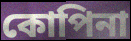
কোপিনা